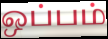
ஒப்பம்